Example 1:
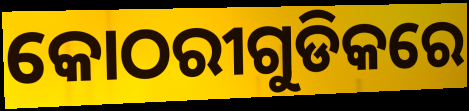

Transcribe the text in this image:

କୋଠରୀଗୁଡିକରେ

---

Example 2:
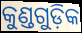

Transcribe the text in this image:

କୁଣ୍ଡଗୁଡ଼ିକ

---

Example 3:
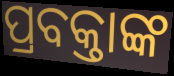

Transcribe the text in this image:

ପ୍ରବକ୍ତାଙ୍କ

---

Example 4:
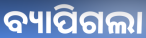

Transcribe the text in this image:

ବ୍ୟାପିଗଲା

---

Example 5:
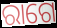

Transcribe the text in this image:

ରାଗେ